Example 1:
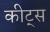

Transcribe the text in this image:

कीट्‌स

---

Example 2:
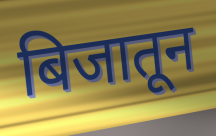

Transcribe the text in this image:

बिजातून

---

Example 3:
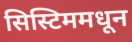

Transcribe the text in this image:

सिस्टिममधून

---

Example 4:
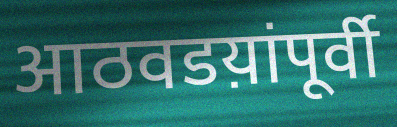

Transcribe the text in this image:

आठवडय़ांपूर्वी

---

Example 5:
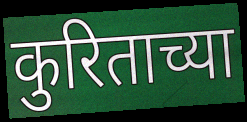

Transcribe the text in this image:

कुरिताच्या